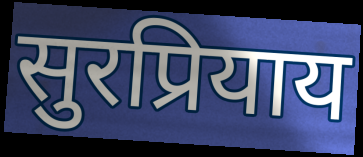
सुरप्रियाय